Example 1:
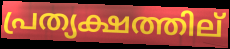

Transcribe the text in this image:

പ്രത്യക്ഷത്തില്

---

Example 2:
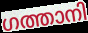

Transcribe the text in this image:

ഗത്താനി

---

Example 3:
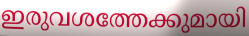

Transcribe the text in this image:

ഇരുവശത്തേക്കുമായി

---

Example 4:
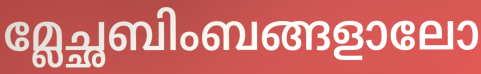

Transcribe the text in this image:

മ്ലേച്ഛബിംബങ്ങളാലോ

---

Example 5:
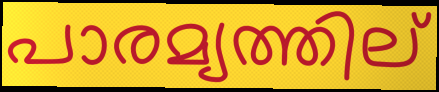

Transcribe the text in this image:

പാരമ്യത്തില്